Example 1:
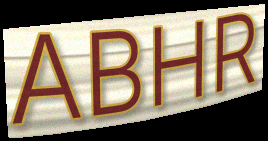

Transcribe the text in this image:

ABHR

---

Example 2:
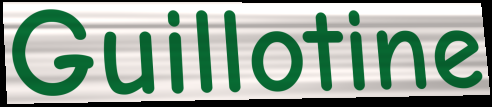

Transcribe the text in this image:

Guillotine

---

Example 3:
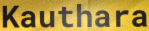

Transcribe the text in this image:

Kauthara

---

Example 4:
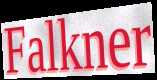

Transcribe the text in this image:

Falkner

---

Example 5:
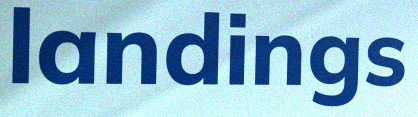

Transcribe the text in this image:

landings